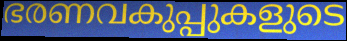
ഭരണവകുപ്പുകളുടെ